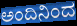
ಅಂದಿನಿಂದ